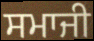
ਸਮਾਜੀ